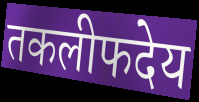
तकलीफदेय